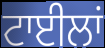
ਟਾਈਲਾਂ